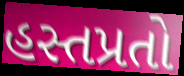
હસ્તપ્રતો